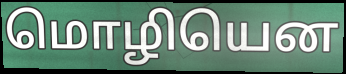
மொழியென